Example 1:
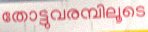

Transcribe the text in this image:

തോട്ടുവരമ്പിലൂടെ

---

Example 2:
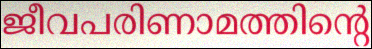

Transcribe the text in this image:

ജീവപരിണാമത്തിന്റെ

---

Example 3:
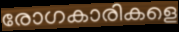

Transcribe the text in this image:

രോഗകാരികളെ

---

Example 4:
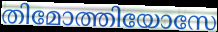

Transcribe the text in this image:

തിമോത്തിയോസേ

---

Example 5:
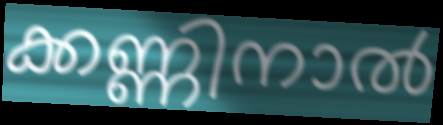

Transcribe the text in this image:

ക്കണ്ണിനാൽ